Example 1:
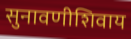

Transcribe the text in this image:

सुनावणीशिवाय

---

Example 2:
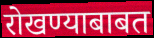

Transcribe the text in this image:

रोखण्याबाबत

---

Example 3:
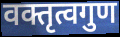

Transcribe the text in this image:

वक्तृत्वगुण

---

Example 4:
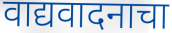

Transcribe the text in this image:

वाद्यवादनाचा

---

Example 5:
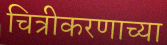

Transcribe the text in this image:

चित्रीकरणाच्या